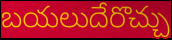
బయలుదేరొచ్చు